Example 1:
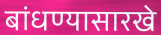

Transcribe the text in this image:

बांधण्यासारखे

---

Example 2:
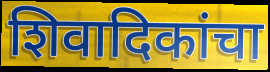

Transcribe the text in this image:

शिवादिकांचा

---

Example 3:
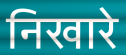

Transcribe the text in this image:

निखारे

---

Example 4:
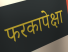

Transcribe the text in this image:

फरकापेक्षा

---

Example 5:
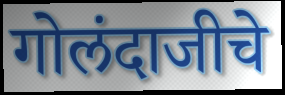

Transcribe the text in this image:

गोलंदाजीचे